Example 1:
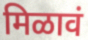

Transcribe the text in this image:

मिळावं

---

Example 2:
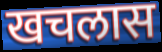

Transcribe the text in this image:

खचलास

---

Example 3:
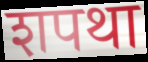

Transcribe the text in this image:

शपथा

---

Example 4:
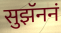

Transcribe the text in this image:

सुझॅननं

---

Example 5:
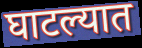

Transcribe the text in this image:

घाटल्यात